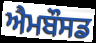
ਐਮਬੌਸਡ